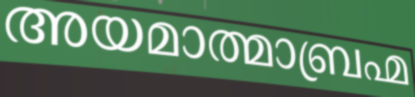
അയമാത്മാബ്രഹ്മ